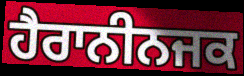
ਹੈਰਾਨੀਨਜਕ